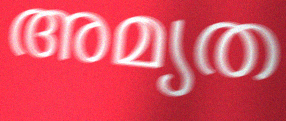
അമ്യത